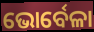
ଭୋର୍ବେଳା